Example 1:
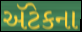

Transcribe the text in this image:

ઍટેકના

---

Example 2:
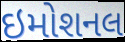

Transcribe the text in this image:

ઇમોશનલ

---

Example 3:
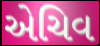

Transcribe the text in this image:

એચિવ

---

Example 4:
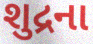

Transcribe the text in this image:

શુદ્રના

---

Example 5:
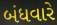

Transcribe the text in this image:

બંધવારે